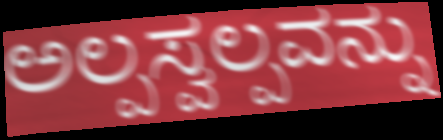
ಅಲ್ಪಸ್ವಲ್ಪವನ್ನು